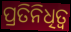
ପ୍ରତିନିଧିତ୍ବ